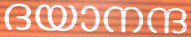
ദയാനന്ദ